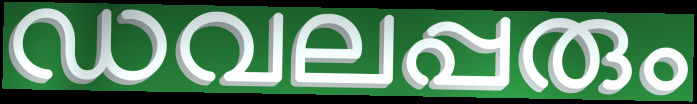
ഡവലപ്പരും